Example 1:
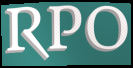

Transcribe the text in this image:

RPO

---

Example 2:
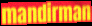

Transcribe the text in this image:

mandirman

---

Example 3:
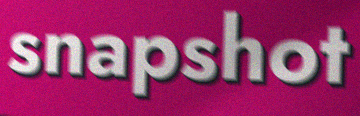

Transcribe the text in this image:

snapshot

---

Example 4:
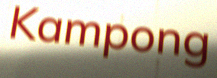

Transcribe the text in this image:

Kampong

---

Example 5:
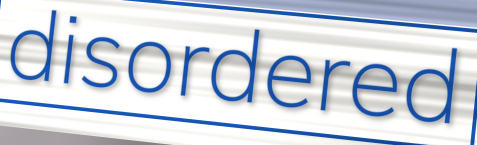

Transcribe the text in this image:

disordered